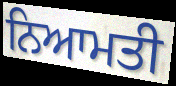
ਨਿਆਮਤੀ